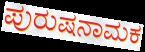
ಪುರುಷನಾಮಕ